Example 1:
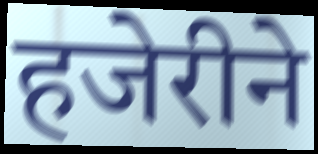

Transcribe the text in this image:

हजेरीने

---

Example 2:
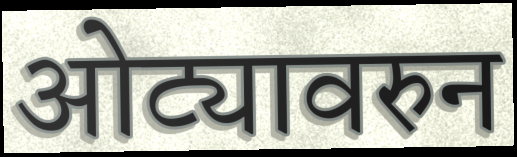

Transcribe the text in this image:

ओट्यावरुन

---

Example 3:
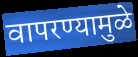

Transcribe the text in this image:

वापरण्यामुळे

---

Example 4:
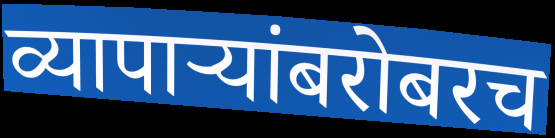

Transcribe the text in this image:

व्यापाऱ्यांबरोबरच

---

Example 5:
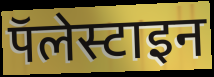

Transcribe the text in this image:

पॅलेस्टाइन